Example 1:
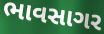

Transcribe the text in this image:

ભાવસાગર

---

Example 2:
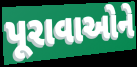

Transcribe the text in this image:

પૂરાવાઓને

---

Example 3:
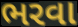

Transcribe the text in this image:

ભરવા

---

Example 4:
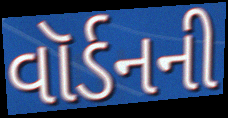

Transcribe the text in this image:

વૉર્ડનની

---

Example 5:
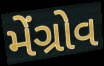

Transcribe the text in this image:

મેંગ્રોવ